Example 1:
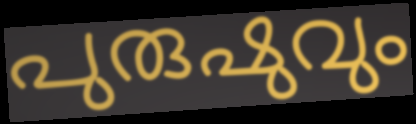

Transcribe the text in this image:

പുരുഷുവും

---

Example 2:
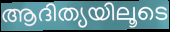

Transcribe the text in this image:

ആദിത്യയിലൂടെ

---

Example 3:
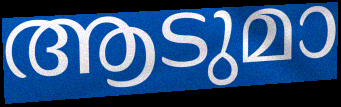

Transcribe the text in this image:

ആടുമാ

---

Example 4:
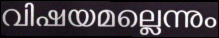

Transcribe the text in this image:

വിഷയമല്ലെന്നും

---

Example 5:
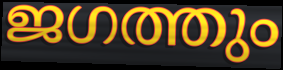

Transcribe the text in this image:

ജഗത്തും